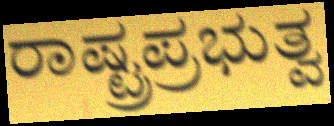
ರಾಷ್ಟ್ರಪ್ರಭುತ್ವ